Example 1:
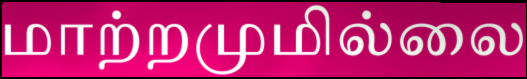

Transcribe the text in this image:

மாற்றமுமில்லை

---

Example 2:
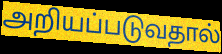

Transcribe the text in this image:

அறியப்படுவதால்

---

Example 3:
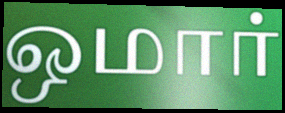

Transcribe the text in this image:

ஒமார்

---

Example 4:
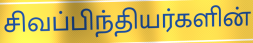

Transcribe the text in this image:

சிவப்பிந்தியர்களின்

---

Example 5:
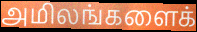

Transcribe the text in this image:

அமிலங்களைக்